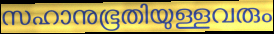
സഹാനുഭൂതിയുള്ളവരും